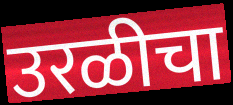
उरळीचा